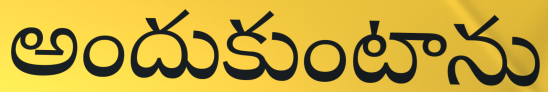
అందుకుంటాను